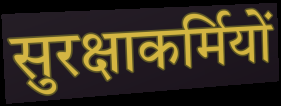
सुरक्षाकर्मियों